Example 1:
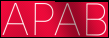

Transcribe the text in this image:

APAB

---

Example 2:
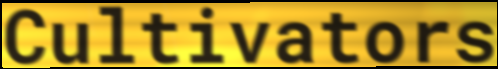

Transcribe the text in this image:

Cultivators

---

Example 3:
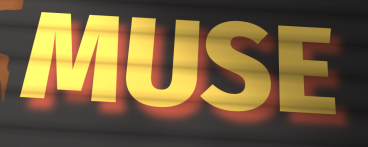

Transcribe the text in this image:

MUSE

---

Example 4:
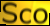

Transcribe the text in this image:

Sco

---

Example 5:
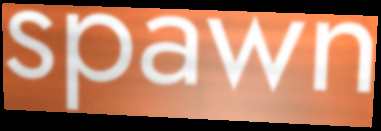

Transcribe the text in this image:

spawn